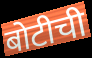
बोटीची